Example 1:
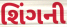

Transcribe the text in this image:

શિંગની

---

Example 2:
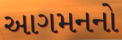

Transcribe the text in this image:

આગમનનો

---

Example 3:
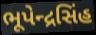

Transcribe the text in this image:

ભૂપેન્દ્રસિંહ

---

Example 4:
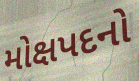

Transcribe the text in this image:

મોક્ષપદનો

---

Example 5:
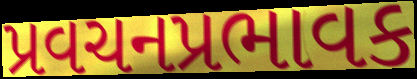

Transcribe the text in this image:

પ્રવચનપ્રભાવક